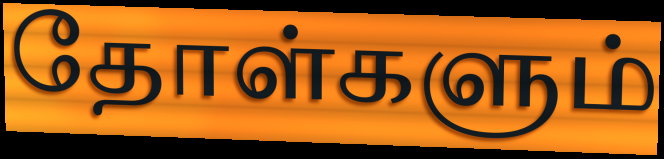
தோள்களும்